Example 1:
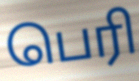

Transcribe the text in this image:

பெரி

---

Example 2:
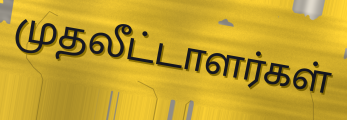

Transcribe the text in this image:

முதலீட்டாளர்கள்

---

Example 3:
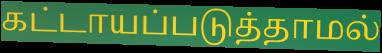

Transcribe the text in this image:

கட்டாயப்படுத்தாமல்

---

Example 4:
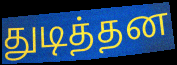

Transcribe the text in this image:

துடித்தன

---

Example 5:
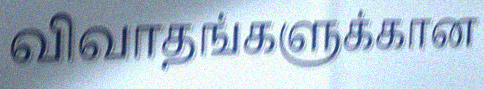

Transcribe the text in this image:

விவாதங்களுக்கான